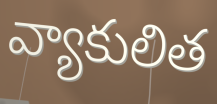
వ్యాకులిత